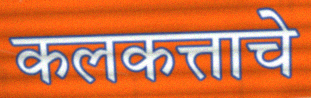
कलकत्ताचे